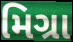
મિગ્રા